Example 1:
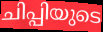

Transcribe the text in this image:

ചിപ്പിയുടെ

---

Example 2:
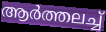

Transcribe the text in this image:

ആർത്തലച്ച്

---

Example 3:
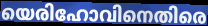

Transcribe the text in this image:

യെരിഹോവിനെതിരെ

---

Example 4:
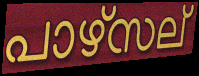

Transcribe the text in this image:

പാഴ്സല്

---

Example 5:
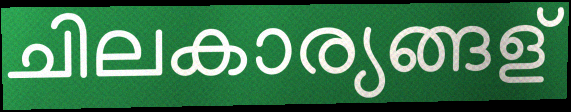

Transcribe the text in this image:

ചിലകാര്യങ്ങള്